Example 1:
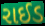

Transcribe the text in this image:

રાઈડ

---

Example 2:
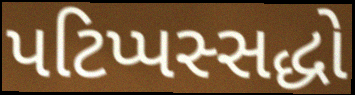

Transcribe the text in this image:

પટિપ્પસ્સદ્ધો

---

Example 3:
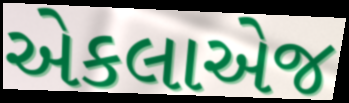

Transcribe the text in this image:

એકલાએજ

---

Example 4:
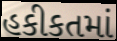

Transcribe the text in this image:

હકીકતમાં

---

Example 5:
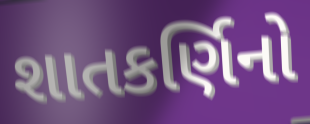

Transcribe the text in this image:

શાતકર્ણિનો